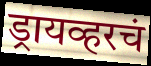
ड्रायव्हरचं